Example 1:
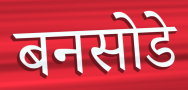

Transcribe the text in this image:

बनसोडे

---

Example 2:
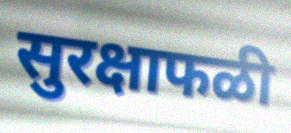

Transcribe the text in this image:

सुरक्षाफळी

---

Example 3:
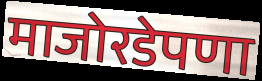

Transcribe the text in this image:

माजोरडेपणा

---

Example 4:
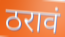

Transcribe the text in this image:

ठरावं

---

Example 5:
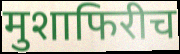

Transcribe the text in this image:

मुशाफिरीच